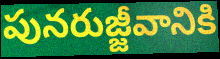
పునరుజ్జీవానికి